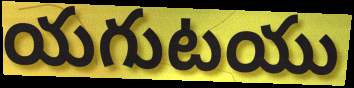
యగుటయు